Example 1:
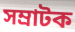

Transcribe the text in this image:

সম্ৰাটক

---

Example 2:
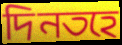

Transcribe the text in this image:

দিনতহে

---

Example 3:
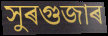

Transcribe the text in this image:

সুৰগুজাৰ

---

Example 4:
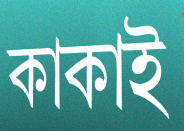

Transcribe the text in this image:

কাকাই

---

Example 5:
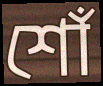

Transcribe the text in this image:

শোঁ